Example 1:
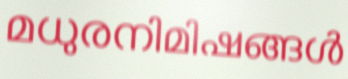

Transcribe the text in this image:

മധുരനിമിഷങ്ങൾ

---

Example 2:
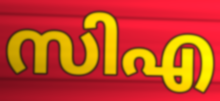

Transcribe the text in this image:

സിഎ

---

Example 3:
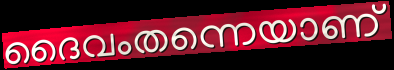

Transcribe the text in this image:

ദൈവംതന്നെയാണ്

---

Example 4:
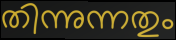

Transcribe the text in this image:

തിന്നുന്നതും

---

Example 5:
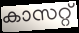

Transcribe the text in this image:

കാസറ്റ്